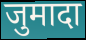
जुमादा